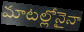
మాటల్లోనైనా